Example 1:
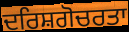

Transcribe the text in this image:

ਦਰਿਸ਼ਗੋਚਰਤਾ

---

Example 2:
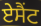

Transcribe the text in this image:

ਏਸੈਂਟ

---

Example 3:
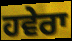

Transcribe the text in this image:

ਹਵੇਰਾ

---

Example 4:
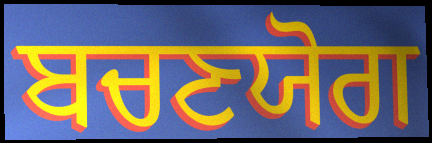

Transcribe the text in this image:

ਬਚਣਯੋਗ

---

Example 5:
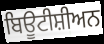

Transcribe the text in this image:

ਬਿਊਟੀਸ਼ੀਅਨ